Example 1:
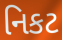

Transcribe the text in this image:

નિકટ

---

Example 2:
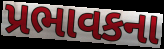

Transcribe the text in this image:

પ્રભાવકના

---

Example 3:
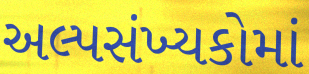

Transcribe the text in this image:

અલ્પસંખ્યકોમાં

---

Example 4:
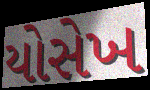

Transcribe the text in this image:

યોસેખ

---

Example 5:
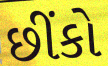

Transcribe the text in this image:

છીંકો